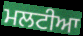
ਮਲਟੀਆ